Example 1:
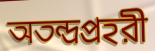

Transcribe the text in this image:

অতন্দ্রপ্রহরী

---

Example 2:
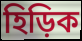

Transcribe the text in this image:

হিড়িক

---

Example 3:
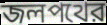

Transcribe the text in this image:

জলপথের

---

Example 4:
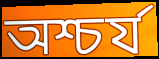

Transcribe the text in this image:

অশ্চর্য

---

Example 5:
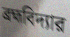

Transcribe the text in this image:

ব্রহ্মবিদ্যার